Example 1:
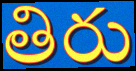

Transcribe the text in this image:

తిరు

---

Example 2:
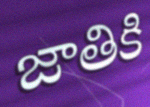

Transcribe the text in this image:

జాతికి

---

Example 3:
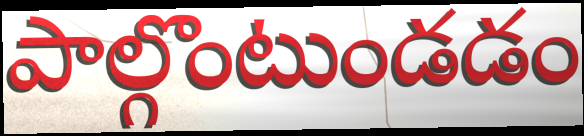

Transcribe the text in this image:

పాల్గొంటుండడం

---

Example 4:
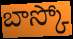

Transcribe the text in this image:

బాస్కో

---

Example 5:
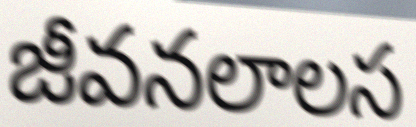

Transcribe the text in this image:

జీవనలాలస